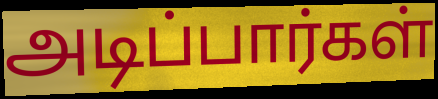
அடிப்பார்கள்